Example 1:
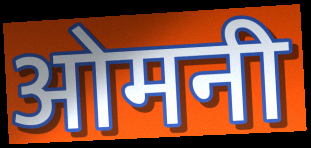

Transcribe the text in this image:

ओमनी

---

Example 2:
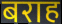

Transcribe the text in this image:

बराह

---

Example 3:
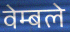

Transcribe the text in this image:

वेम्बले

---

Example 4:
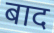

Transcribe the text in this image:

बाद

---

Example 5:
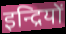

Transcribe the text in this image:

इन्द्रियों